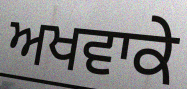
ਅਖਵਾਕੇ